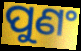
ପୁଣଂ